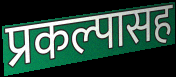
प्रकल्पासह